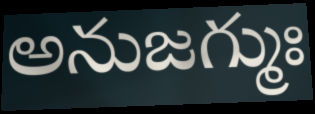
అనుజగ్ముః